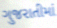
ગુજરાતીમાં